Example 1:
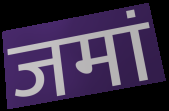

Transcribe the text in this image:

जमां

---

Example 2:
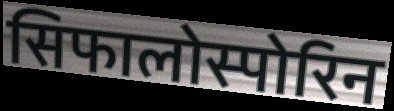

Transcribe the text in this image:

सिफालोस्पोरिन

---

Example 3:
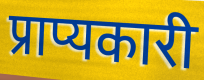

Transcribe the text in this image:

प्राप्यकारी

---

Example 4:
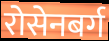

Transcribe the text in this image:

रोसेनबर्ग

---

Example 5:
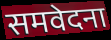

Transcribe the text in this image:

समवेदना